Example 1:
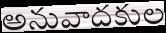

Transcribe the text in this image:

అనువాదకుల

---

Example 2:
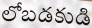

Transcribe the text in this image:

లోబడకుడి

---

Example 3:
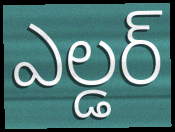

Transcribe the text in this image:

ఎల్డర్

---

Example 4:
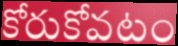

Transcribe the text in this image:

కోరుకోవటం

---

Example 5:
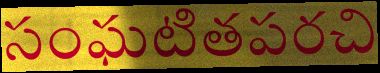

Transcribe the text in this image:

సంఘటితపరచి